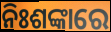
ନିଃଶଙ୍କାରେ